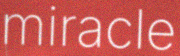
miracle